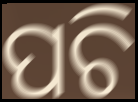
ପଚି